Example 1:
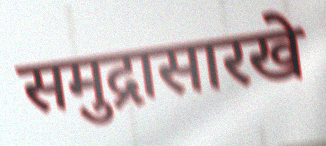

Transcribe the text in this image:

समुद्रासारखे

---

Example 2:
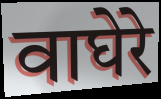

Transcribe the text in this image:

वाघेरे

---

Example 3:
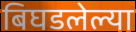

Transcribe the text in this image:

बिघडलेल्या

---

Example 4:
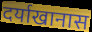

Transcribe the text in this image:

दर्याखानास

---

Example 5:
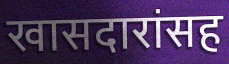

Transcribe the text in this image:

खासदारांसह